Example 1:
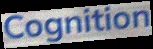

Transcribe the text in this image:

Cognition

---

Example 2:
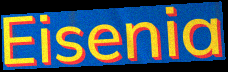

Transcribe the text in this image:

Eisenia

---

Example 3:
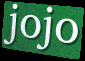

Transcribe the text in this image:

jojo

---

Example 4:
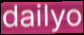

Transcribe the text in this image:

dailyo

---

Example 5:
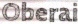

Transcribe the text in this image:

Oberai